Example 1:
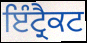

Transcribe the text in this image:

ਇੰਟ੍ਰੈਕਟ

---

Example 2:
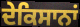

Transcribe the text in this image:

ਦੇਕਿਸਾਨਾਂ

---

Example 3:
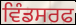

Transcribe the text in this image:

ਵਿੰਡਸਰਫ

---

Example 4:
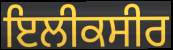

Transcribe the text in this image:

ਇਲੀਕਸੀਰ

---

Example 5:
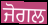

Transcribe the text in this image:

ਜੋਗਲ